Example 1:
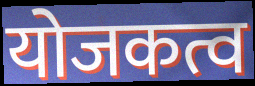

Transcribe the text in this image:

योजकत्व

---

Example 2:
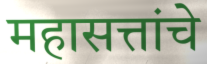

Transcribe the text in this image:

महासत्तांचे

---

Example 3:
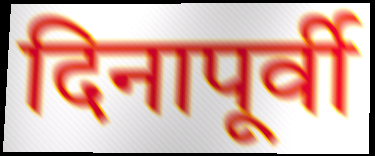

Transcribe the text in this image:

दिनापूर्वी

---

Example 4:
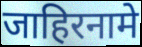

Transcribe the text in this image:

जाहिरनामे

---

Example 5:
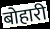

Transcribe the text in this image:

बोहारी